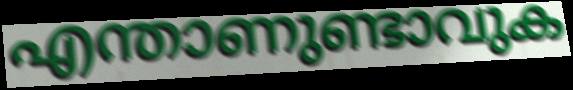
എന്താണുണ്ടാവുക